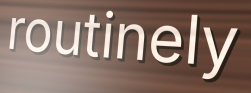
routinely